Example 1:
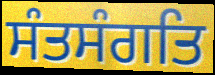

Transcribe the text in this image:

ਸੰਤਸੰਗਤਿ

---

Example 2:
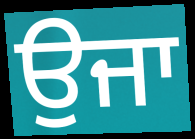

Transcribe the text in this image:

ਉਜਾ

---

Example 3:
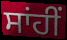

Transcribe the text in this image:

ਸਾਂਹੀਂ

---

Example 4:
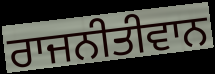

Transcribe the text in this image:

ਰਾਜਨੀਤੀਵਾਨ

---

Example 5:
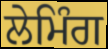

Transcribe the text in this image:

ਲੇਮਿੰਗ